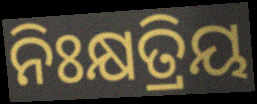
ନିଃକ୍ଷତ୍ରିୟ